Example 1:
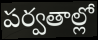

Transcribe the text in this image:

పర్వతాల్లో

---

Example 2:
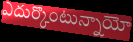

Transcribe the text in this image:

ఎదుర్కొంటున్నాయో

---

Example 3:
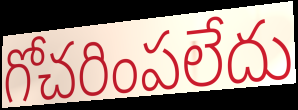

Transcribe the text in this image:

గోచరింపలేదు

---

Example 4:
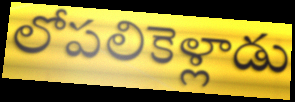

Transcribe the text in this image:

లోపలికెళ్లాడు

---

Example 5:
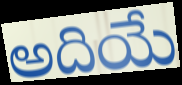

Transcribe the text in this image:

అదియే